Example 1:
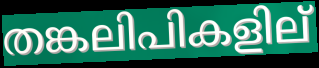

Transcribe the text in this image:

തങ്കലിപികളില്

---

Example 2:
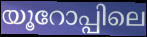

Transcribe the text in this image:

യൂറോപ്പിലെ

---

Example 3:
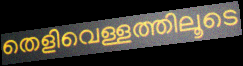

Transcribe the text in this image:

തെളിവെള്ളത്തിലൂടെ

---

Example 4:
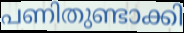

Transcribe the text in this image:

പണിതുണ്ടാക്കി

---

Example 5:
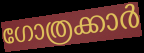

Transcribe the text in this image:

ഗോത്രക്കാർ